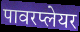
पावरप्लेयर